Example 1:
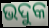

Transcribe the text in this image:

ଭଦୁକ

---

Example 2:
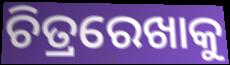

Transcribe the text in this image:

ଚିତ୍ରରେଖାକୁ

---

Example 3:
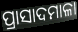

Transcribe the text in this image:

ପ୍ରାସାଦମାଳା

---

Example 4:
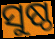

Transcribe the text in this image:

ସୁଷ୍ଠ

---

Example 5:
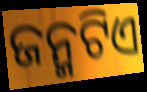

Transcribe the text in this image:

ଜନ୍ମଟିଏ